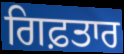
ਗਿਫ਼ਤਾਰ